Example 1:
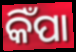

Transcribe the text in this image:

କିଁପା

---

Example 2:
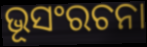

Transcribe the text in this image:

ଭୂସଂରଚନା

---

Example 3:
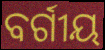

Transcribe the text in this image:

ବର୍ଗୀୟ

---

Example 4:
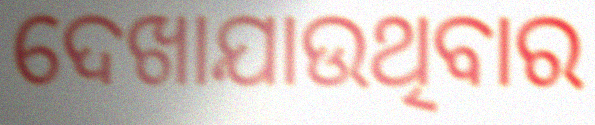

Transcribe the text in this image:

ଦେଖାଯାଉଥିବାର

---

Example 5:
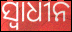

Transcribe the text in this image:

ସ୍ବାଧୀନ